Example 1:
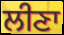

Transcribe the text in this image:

ਲੀਣਾ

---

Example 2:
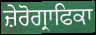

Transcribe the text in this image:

ਜ਼ੇਰੋਗ੍ਰਾਫਿਕਾ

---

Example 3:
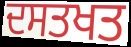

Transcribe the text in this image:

ਦਸਤਖਤ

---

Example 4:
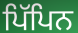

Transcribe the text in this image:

ਪਿੱਪਿਨ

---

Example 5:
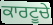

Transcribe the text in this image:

ਕਾਰਟੂਚੇ